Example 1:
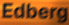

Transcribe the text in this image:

Edberg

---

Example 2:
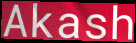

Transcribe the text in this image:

Akash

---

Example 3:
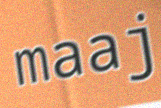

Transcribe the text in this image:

maaj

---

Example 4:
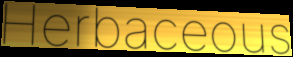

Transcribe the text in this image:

Herbaceous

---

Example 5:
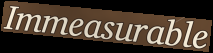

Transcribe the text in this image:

Immeasurable